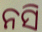
ନସି